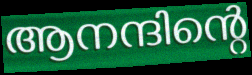
ആനന്ദിന്റെ